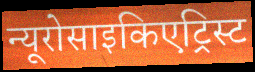
न्यूरोसाइकिएट्रिस्ट